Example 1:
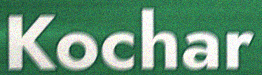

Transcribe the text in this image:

Kochar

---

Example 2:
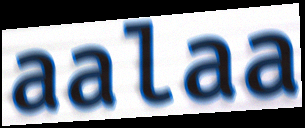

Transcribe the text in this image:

aalaa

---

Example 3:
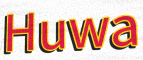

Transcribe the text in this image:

Huwa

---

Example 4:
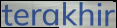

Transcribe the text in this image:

terakhir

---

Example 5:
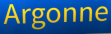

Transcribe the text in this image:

Argonne